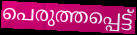
പെരുത്തപ്പെട്ട്